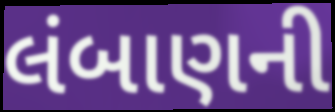
લંબાણની